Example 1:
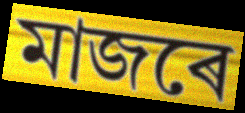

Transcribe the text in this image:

মাজৰে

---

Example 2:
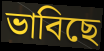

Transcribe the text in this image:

ভাবিছে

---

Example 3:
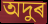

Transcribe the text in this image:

অদুৰ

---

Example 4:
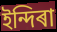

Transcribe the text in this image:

ইন্দিৰা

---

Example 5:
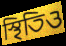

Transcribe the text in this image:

স্থিতিও